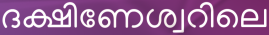
ദക്ഷിണേശ്വറിലെ